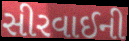
સીરવાઈની